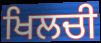
ਖਿਲਚੀ